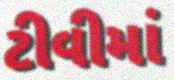
ટીવીમાં